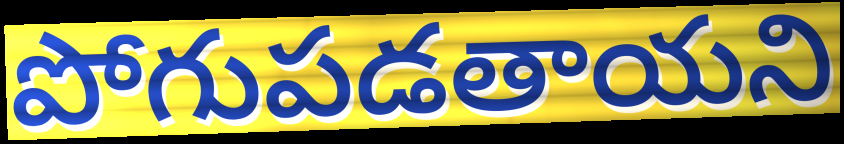
పోగుపడతాయని